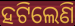
ହଟିଲେଣି